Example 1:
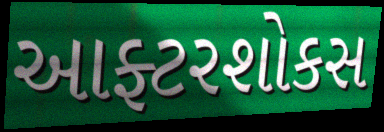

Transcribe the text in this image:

આફ્ટરશોકસ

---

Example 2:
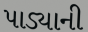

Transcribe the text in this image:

પાડ્યાની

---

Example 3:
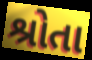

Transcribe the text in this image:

શ્રોતા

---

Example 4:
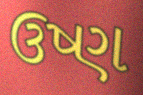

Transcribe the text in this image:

ઉષ્ણ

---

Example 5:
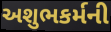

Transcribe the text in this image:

અશુભકર્મની